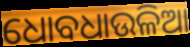
ଧୋବଧାଉଳିଆ